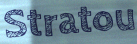
Stratou